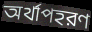
অর্থাপহরণ